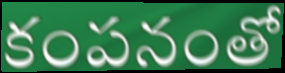
కంపనంతో